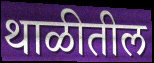
थाळीतील